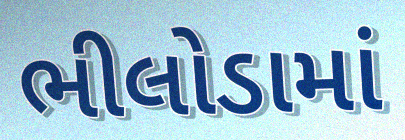
ભીલોડામાં